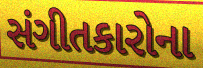
સંગીતકારોના